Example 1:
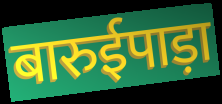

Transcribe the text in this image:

बारुईपाड़ा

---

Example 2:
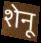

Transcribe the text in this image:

शेनू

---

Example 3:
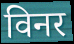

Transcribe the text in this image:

विनर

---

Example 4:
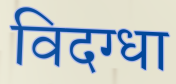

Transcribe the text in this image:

विदग्धा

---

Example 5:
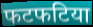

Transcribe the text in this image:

फटफटिया